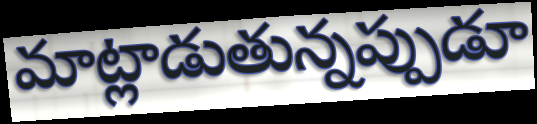
మాట్లాడుతున్నప్పుడూ